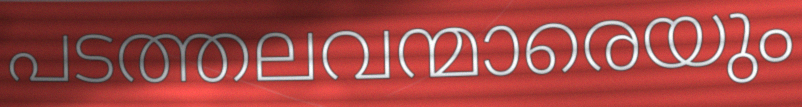
പടത്തലവന്മാരെയും